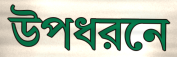
উপধরনে